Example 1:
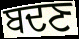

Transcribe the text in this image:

ਬਦਣ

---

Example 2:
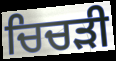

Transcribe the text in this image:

ਚਿਚੜੀ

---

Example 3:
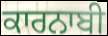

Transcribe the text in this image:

ਕਾਰਨਾਬੀ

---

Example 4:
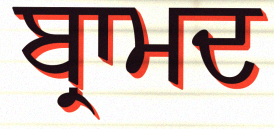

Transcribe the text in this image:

ਬ੍ਰਾਮਦ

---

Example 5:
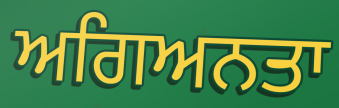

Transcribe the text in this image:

ਅਗਿਅਨਤਾ